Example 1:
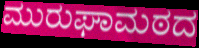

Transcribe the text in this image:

ಮುರುಘಾಮಠದ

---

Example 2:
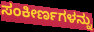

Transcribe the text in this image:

ಸಂಕೀರ್ಣಗಳನ್ನು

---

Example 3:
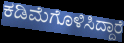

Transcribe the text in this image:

ಕಡಿಮೆಗೊಳಿಸಿದ್ದಾರೆ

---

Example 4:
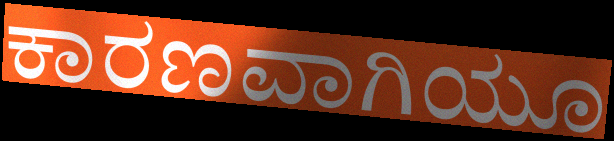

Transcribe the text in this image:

ಕಾರಣವಾಗಿಯೂ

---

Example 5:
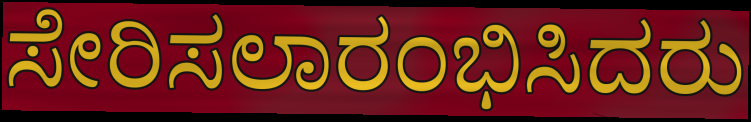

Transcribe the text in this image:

ಸೇರಿಸಲಾರಂಭಿಸಿದರು